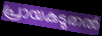
പ്രായകുടുതൽ